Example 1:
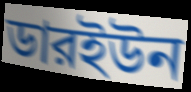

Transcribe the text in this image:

ডারইউন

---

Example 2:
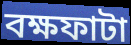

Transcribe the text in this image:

বক্ষফাটা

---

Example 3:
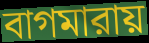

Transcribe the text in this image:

বাগমারায়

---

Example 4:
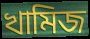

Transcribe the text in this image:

খামিজ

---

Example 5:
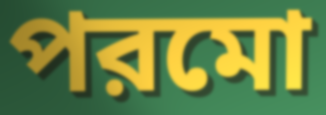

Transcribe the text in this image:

পরমো